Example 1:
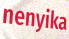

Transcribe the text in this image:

nenyika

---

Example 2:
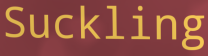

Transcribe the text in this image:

Suckling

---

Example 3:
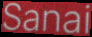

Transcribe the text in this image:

Sanai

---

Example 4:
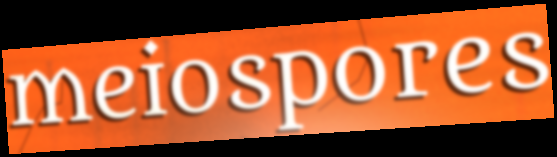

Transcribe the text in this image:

meiospores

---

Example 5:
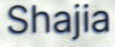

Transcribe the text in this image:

Shajia